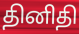
தினிதி